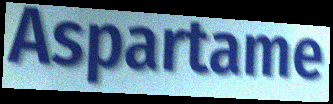
Aspartame